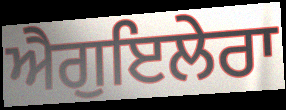
ਐਗੁਇਲੇਰਾ